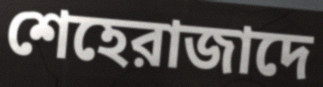
শেহেরাজাদে